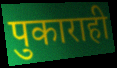
पुकाराही